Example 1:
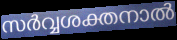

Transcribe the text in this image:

സർവ്വശക്തനാൽ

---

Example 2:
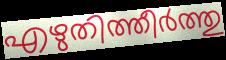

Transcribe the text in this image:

എഴുതിത്തീർത്തു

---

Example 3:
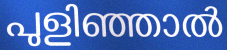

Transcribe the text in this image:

പുളിഞ്ഞാൽ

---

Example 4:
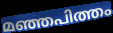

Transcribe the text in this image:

മഞ്ഞപിത്തം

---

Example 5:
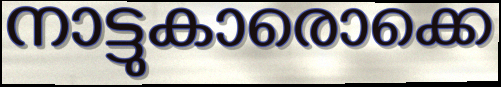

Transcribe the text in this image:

നാട്ടുകാരൊക്കെ